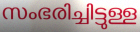
സംഭരിച്ചിട്ടുള്ള